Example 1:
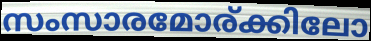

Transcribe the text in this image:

സംസാരമോര്ക്കിലോ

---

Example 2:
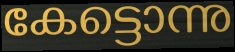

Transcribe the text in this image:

കേട്ടൊന്നു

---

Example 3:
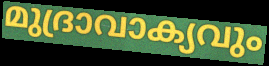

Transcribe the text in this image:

മുദ്രാവാക്യവും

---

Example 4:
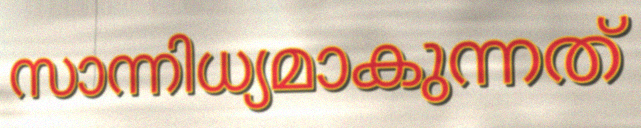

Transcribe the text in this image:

സാന്നിധ്യമാകുന്നത്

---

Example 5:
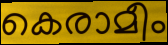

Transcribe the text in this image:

കെരാമീം